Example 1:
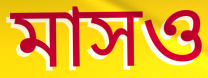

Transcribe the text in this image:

মাসও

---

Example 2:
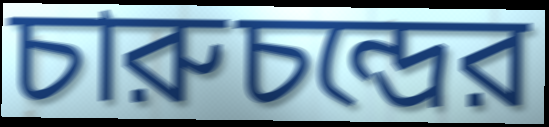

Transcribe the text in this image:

চারুচন্দ্রের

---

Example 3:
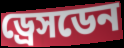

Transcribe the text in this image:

ড্রেসডেন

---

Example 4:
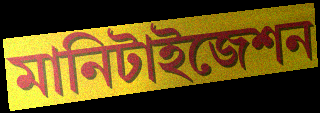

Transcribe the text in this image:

মানিটাইজেশন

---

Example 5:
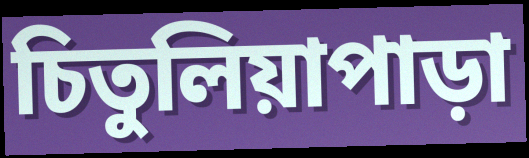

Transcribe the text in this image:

চিতুলিয়াপাড়া